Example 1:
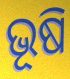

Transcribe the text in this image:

ଭୂଷି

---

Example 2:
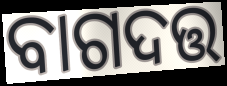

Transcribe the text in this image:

ବାଗଦତ୍ତ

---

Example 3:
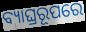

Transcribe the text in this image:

ବ୍ୟାଘ୍ରରୂପରେ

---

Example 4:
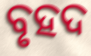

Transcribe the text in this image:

ବୃହଦ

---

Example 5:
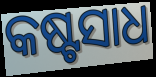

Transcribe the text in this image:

କଷ୍ଟସାଧ